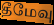
தீமேவு